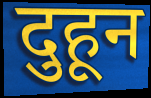
दुहून